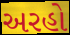
અરહો